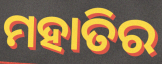
ମହାତିର